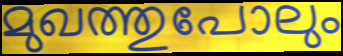
മുഖത്തുപോലും